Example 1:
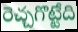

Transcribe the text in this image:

రెచ్చగొట్టేది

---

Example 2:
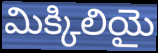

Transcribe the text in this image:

మిక్కిలియై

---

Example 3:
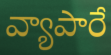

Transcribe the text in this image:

వ్యాపారే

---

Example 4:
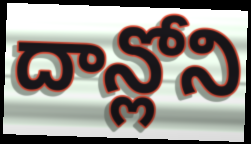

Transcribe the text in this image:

దాన్లోని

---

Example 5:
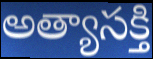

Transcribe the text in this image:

అత్యాసక్తి